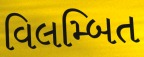
વિલમ્બિત